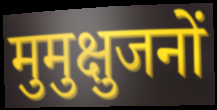
मुमुक्षुजनों